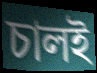
চালই